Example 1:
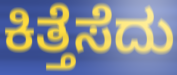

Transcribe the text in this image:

ಕಿತ್ತೆಸೆದು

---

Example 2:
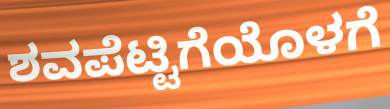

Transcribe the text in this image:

ಶವಪೆಟ್ಟಿಗೆಯೊಳಗೆ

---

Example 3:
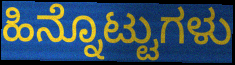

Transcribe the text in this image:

ಹಿನ್ನೊಟ್ಟುಗಳು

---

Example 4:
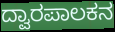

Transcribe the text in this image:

ದ್ವಾರಪಾಲಕನ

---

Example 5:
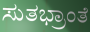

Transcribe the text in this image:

ಸುತಭ್ರಾಂತೆ